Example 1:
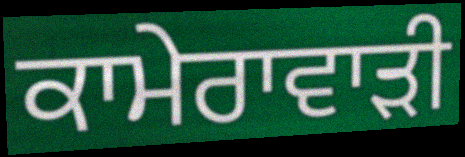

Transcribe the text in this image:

ਕਾਮੇਰਾਵਾੜੀ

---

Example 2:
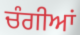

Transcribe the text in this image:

ਚੰਗੀਆਂ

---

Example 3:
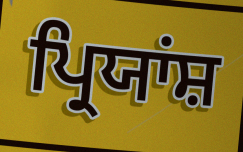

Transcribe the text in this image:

ਪ੍ਰਿਯਾਂਸ਼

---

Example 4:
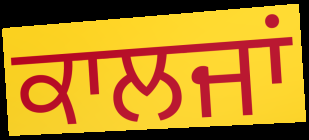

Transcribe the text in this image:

ਕਾਲਜਾਂ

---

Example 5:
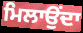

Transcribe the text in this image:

ਮਿਲਾਉਂਦਾ